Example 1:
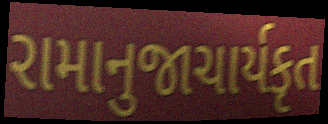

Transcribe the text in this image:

રામાનુજાચાર્યકૃત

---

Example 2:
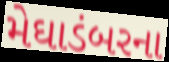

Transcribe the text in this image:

મેઘાડંબરના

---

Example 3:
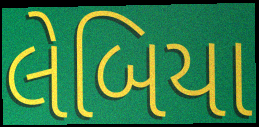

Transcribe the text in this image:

લેબિયા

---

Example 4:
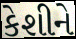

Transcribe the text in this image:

કેશીને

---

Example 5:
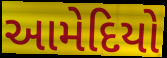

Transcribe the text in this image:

આમેદિયો